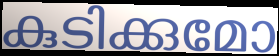
കുടിക്കുമോ